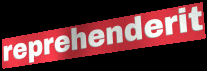
reprehenderit